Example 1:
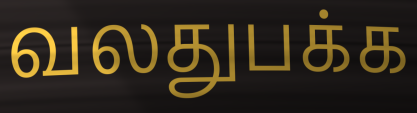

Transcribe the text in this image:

வலதுபக்க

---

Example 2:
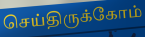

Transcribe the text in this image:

செய்திருக்கோம்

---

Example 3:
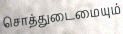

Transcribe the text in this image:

சொத்துடைமையும்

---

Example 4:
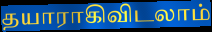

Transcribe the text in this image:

தயாராகிவிடலாம்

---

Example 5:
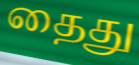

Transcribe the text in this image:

தைது